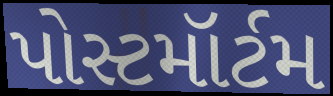
પોસ્ટમૉર્ટમ